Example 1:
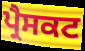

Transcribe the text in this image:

ਪ੍ਰੈਸਕਟ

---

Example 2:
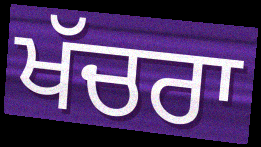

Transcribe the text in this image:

ਖੱਚਰਾ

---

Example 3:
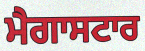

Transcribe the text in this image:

ਮੈਗਾਸਟਾਰ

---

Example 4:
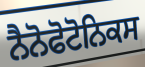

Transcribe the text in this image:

ਨੈਨੋਫੋਟੋਨਿਕਸ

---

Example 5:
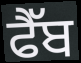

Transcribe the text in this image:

ਫੈੱਬ